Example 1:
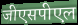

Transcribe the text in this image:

जीएसपीएल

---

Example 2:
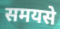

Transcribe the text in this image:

समयसे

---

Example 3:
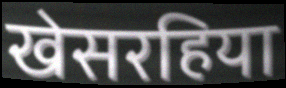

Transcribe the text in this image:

खेसरहिया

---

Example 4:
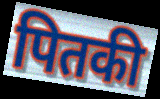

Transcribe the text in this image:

पितकी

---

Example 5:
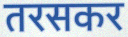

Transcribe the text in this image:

तरसकर